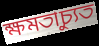
ক্ষমতাচ্যুত